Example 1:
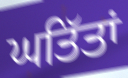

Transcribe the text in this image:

ਘਤਿੱਤਾਂ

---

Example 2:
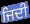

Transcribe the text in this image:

ਜਿਦੀ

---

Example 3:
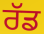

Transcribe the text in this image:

ਰੱਡ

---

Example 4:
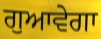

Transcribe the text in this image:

ਗੁਆਵੇਗਾ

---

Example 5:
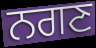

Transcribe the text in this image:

ਨਗਣ